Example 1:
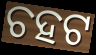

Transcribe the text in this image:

ଚହଟ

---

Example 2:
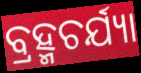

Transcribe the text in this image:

ବ୍ରହ୍ମଚର୍ଯ୍ୟା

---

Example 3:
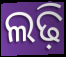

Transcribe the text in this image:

ଲଢ଼ି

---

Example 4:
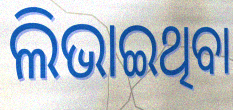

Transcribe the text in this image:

ଲିଭାଇଥିବା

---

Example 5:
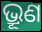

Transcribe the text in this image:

ଭ୍ରୂଣ